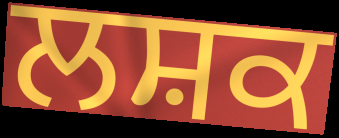
ਲਸ਼ਕ